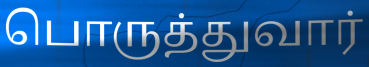
பொருத்துவார்